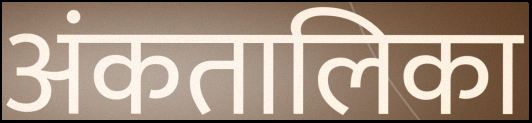
अंकतालिका